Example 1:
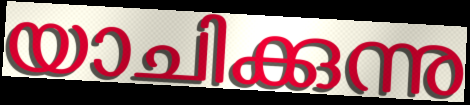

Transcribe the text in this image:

യാചിക്കുന്നു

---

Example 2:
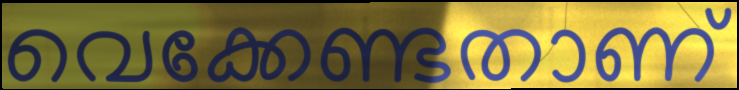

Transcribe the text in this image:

വെക്കേണ്ടതാണ്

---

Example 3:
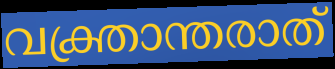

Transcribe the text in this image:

വക്ത്രാന്തരാത്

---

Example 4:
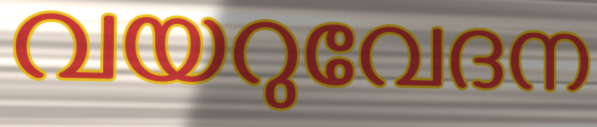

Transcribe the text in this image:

വയറുവേദന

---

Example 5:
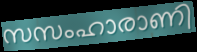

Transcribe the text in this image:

സസംഹാരാണി